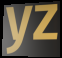
yz